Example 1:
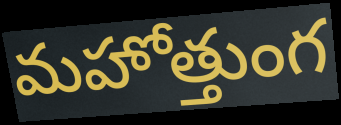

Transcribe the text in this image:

మహోత్తుంగ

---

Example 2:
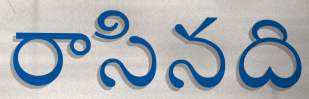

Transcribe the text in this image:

రాసినది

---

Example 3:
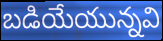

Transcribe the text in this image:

బడియేయున్నవి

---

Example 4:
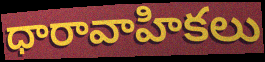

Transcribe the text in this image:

ధారావాహికలు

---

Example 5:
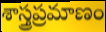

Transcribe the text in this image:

శాస్త్రప్రమాణం